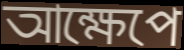
আক্ষেপে